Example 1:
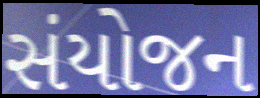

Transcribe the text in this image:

સંયોજન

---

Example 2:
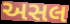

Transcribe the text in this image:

અસલ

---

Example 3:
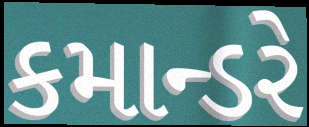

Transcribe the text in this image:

કમાન્ડરે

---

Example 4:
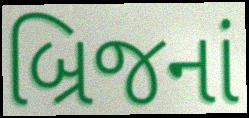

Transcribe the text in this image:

બ્રિજનાં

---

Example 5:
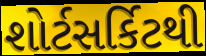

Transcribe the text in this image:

શોર્ટસર્કિટથી